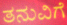
ತನುವಿಗೆ